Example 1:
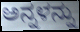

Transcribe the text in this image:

ಅನ್ನಳನ್ನು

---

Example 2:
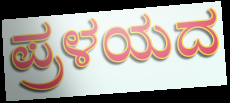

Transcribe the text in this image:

ಪ್ರಳಯದ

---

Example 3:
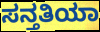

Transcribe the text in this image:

ಸನ್ತತಿಯಾ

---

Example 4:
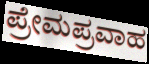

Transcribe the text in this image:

ಪ್ರೇಮಪ್ರವಾಹ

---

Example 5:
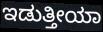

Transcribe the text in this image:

ಇಡುತ್ತೀಯಾ